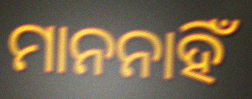
ମାନନାହିଁ